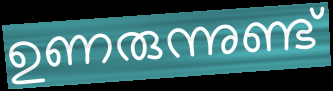
ഉണരുന്നുണ്ട്